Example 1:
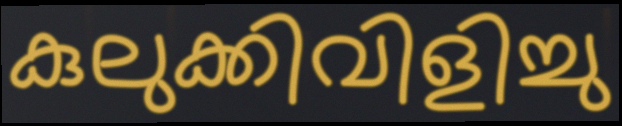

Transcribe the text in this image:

കുലുക്കിവിളിച്ചു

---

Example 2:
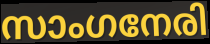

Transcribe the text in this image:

സാംഗനേരി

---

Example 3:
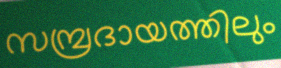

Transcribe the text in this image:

സമ്പ്രദായത്തിലും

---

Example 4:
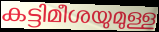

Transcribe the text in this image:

കട്ടിമീശയുമുള്ള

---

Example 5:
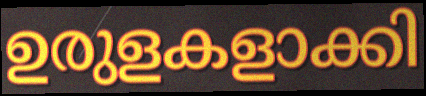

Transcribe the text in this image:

ഉരുളകളാക്കി